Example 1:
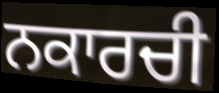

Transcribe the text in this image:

ਨਕਾਰਚੀ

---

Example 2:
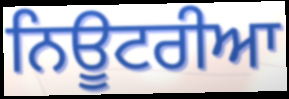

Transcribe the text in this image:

ਨਿਊਟਰੀਆ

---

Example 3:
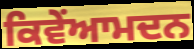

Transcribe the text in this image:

ਕਿਵੇਂਆਮਦਨ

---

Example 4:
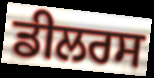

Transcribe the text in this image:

ਡੀਲਰਸ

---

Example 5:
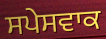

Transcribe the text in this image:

ਸਪੇਸਵਾਕ